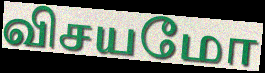
விசயமோ